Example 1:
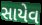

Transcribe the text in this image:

સાયેવ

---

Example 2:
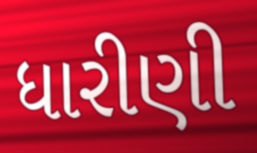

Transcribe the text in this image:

ધારીણી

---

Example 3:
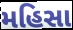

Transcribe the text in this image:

મહિસા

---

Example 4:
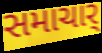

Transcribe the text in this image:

સમાચાર્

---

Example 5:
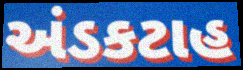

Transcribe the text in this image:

અંડકટાહ